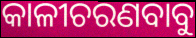
କାଳୀଚରଣବାବୁ